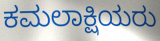
ಕಮಲಾಕ್ಷಿಯರು